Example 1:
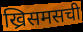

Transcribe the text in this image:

ख्रिसमसची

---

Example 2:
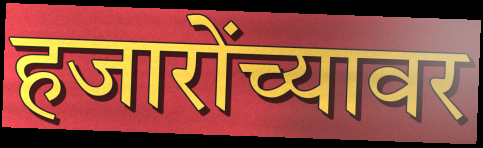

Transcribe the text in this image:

हजारोंच्यावर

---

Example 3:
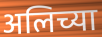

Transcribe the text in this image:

अलिच्या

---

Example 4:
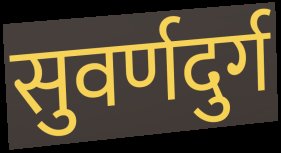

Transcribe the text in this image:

सुवर्णदुर्ग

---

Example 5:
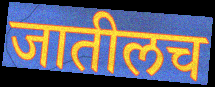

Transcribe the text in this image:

जातीलच